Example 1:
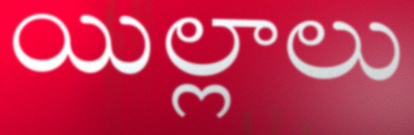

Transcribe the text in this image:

యిల్లాలు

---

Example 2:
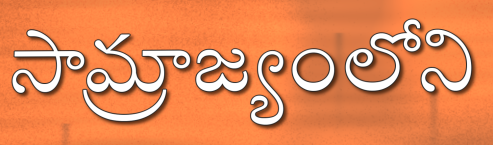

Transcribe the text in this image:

సామ్రాజ్యంలోని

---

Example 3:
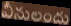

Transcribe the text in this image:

వీనులందు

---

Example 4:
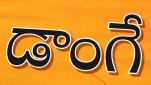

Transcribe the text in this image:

డాంగే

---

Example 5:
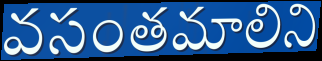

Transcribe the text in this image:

వసంతమాలిని